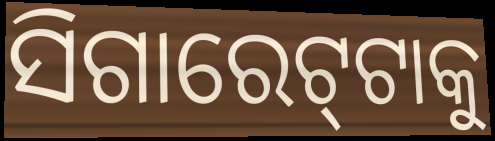
ସିଗାରେଟ୍‍ଟାକୁ